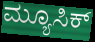
ಮ್ಯೂಸಿಕ್